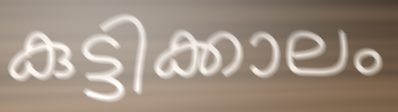
കുട്ടിക്കാലം